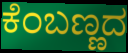
ಕೆಂಬಣ್ಣದ